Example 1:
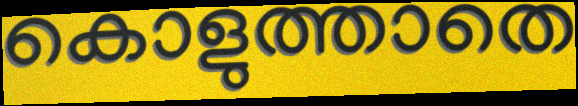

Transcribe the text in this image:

കൊളുത്താതെ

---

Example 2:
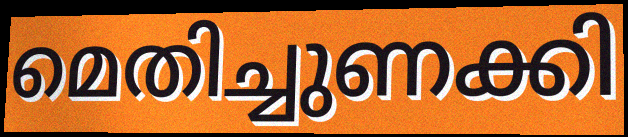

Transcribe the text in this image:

മെതിച്ചുണക്കി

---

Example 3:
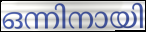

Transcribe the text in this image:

ഒന്നിനായി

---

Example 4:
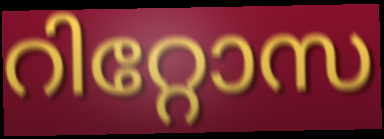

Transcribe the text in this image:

റിറ്റോസ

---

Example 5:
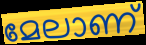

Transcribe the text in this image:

മേലാണ്